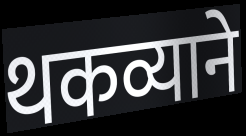
थकव्याने